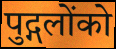
पुद्गलोंको